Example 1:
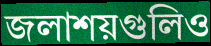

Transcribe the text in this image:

জলাশয়গুলিও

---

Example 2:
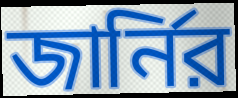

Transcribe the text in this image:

জার্নির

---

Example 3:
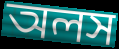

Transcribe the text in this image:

অলস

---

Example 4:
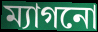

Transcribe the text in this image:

ম্যাগনো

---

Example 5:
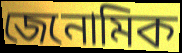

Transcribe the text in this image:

জেনোমিক